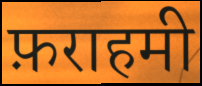
फ़राहमी